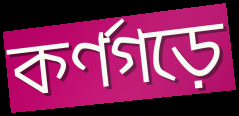
কর্ণগড়ে